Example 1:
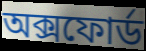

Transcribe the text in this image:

অক্সফোৰ্ড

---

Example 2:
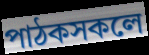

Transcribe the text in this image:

পাঠকসকলে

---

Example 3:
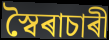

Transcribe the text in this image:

স্বৈৰাচাৰী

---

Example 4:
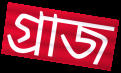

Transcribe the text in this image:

গ্ৰাজ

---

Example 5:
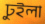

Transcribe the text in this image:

ঢুইলা